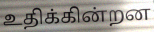
உதிக்கின்றன